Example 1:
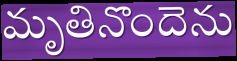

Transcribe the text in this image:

మృతినొందెను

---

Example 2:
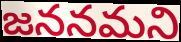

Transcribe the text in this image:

జననమని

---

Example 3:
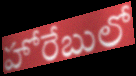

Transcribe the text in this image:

హోరేబులో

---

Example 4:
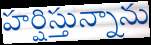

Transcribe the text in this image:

హర్షిస్తున్నాను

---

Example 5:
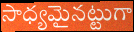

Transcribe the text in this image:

సాధ్యమైనట్టుగా